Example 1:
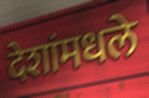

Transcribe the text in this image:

देशांमधले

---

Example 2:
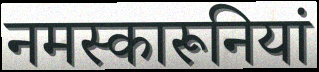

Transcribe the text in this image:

नमस्कारूनियां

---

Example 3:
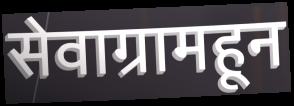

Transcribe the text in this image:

सेवाग्रामहून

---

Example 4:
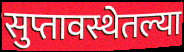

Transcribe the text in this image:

सुप्तावस्थेतल्या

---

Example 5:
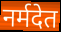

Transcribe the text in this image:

नर्मदेत